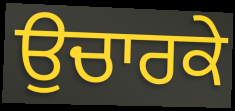
ਉਚਾਰਕੇ